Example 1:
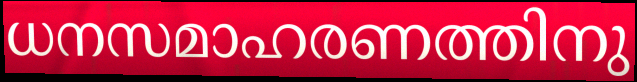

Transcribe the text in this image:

ധനസമാഹരണത്തിനു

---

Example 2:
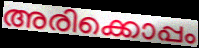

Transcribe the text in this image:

അരിക്കൊപ്പം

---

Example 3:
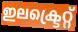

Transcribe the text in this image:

ഇലക്ട്രെറ്റ്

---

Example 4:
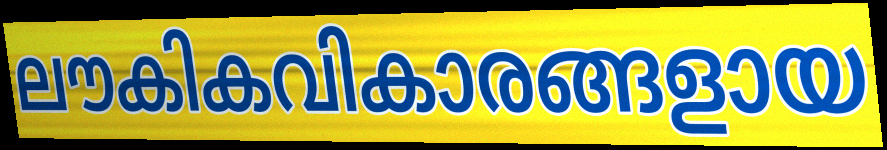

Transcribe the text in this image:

ലൗകികവികാരങ്ങളായ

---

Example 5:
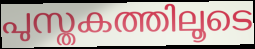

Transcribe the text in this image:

പുസ്തകത്തിലൂടെ